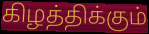
கிழத்திக்கும்